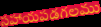
సహాయపడగలము